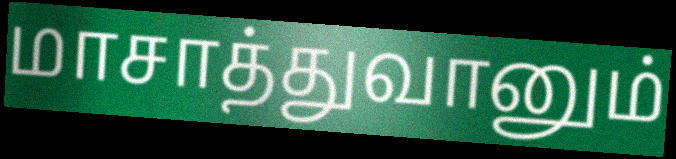
மாசாத்துவானும்